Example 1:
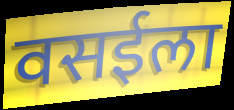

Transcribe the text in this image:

वसईला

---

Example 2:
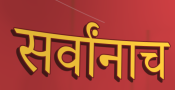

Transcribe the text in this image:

सर्वांनाच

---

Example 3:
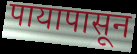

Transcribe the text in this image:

पायापासून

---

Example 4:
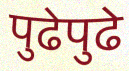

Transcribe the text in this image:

पुढेपुढे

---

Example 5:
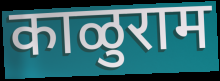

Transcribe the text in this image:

काळुराम